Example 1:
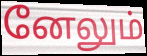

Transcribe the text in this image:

னேலும்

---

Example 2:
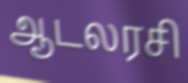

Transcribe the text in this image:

ஆடலரசி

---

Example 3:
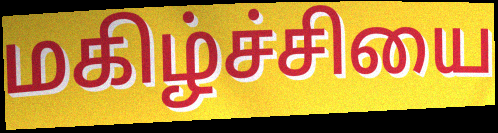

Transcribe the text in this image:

மகிழ்ச்சியை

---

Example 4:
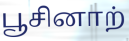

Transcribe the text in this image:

பூசினாற்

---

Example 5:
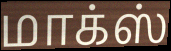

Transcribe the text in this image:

மாக்ஸ்